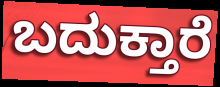
ಬದುಕ್ತಾರೆ